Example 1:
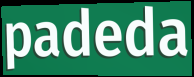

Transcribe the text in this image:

padeda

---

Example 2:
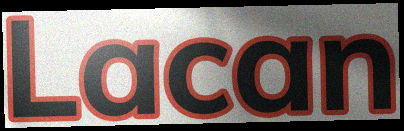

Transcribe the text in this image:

Lacan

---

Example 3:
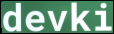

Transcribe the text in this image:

devki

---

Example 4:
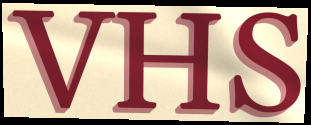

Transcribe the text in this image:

VHS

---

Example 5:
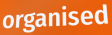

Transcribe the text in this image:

organised